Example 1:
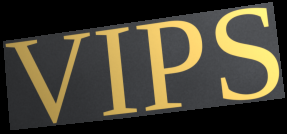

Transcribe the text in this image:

VIPS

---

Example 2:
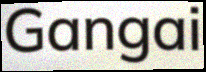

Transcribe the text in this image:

Gangai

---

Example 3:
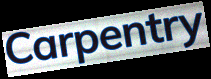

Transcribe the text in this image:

Carpentry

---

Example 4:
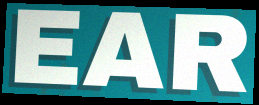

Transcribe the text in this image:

EAR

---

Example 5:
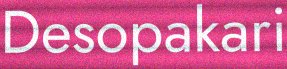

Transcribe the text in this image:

Desopakari